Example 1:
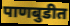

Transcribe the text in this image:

पाणबुडीत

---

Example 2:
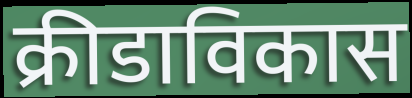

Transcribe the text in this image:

क्रीडाविकास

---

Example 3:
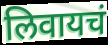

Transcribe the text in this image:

लिवायचं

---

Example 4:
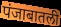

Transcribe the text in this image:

पंजाबातली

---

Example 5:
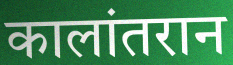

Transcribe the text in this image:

कालांतरान